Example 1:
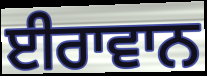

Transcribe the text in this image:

ਈਰਾਵਾਨ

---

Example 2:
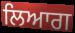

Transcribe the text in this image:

ਲਿਆਗ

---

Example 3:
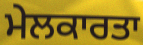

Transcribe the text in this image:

ਮੇਲਕਾਰਤਾ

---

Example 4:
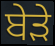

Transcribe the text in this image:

ਬੇੜੇ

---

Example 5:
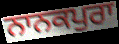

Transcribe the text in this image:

ਨਾਨਕਪੁਰਾ